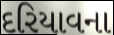
દરિયાવના